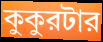
কুকুরটার